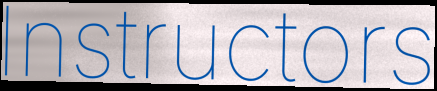
Instructors